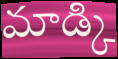
మాడ్కి